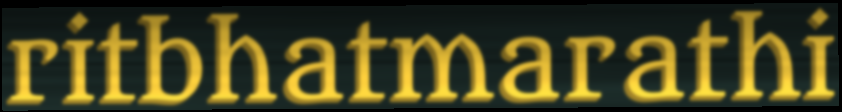
ritbhatmarathi